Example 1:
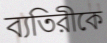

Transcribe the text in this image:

ব্যতিরীকে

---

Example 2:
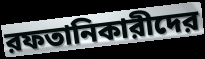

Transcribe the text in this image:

রফতানিকারীদের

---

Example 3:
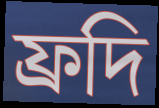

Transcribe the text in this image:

ফ্রদি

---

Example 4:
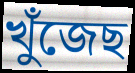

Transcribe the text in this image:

খুঁজেছ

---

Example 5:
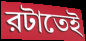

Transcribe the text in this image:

রটাতেই